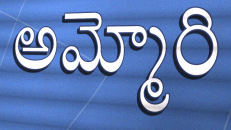
అమ్మోరి